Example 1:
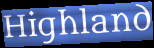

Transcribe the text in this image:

Highland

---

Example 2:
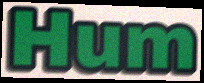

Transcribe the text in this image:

Hum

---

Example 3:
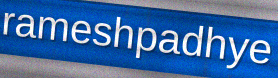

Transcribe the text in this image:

rameshpadhye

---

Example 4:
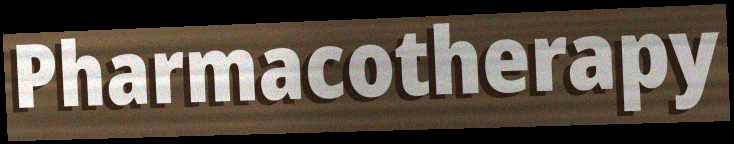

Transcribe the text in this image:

Pharmacotherapy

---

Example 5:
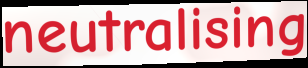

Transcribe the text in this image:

neutralising